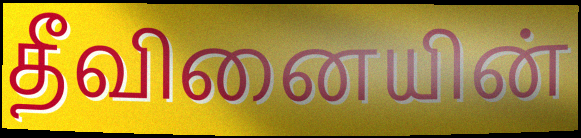
தீவினையின்